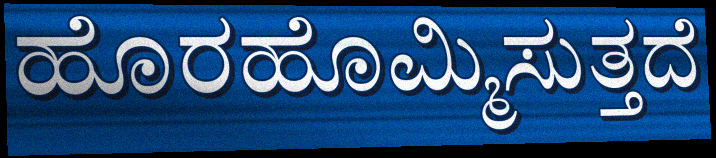
ಹೊರಹೊಮ್ಮಿಸುತ್ತದೆ